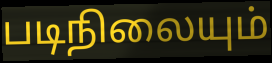
படிநிலையும்